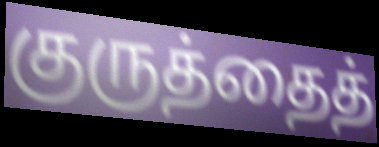
குருத்தைத்